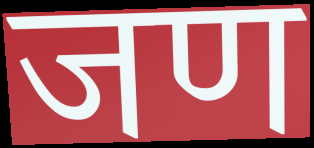
जण